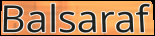
Balsaraf